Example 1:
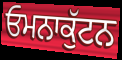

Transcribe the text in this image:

ਓਮਨਾਕੁੱਟਨ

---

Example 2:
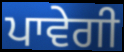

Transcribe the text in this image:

ਪਾਵੇਗੀ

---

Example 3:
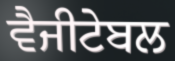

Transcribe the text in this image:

ਵੈਜੀਟੇਬਲ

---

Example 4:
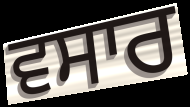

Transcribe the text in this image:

ਵਸਾਰ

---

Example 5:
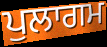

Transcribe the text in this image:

ਪੁਲਾਗਮ